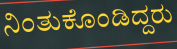
ನಿಂತುಕೊಂಡಿದ್ದರು